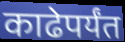
काढेपर्यंत